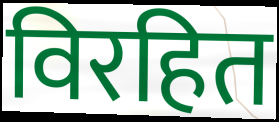
विरहित